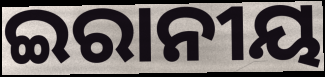
ଇରାନୀୟ